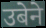
उबेने